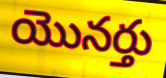
యొనర్తు